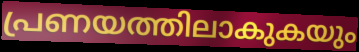
പ്രണയത്തിലാകുകയും